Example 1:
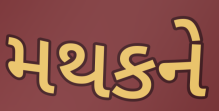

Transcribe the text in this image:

મથકને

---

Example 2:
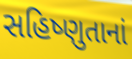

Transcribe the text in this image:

સહિષ્ણુતાનાં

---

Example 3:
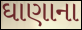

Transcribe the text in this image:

ઘાણાના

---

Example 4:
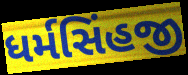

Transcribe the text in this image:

ધર્મસિંહજી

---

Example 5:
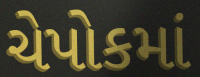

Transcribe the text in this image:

ચેપોકમાં